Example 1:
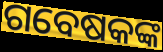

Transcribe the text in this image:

ଗବେଷକଙ୍କ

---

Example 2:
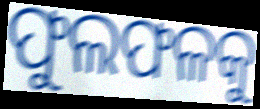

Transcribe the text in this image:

ଫୁଲଫଳକୁ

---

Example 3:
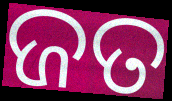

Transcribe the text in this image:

ଜତ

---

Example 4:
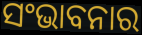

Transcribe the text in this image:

ସଂଭାବନାର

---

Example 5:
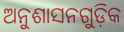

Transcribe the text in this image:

ଅନୁଶାସନଗୁଡ଼ିକ